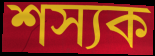
শস্যক